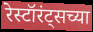
रेस्टॉरंट्सच्या